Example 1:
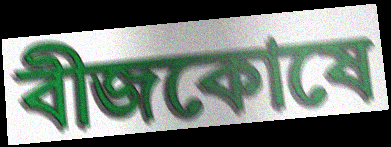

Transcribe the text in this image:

বীজকোষে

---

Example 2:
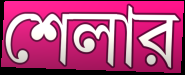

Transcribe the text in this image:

শেলার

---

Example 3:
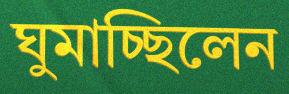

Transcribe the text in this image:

ঘুমাচ্ছিলেন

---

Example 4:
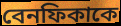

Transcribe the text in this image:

বেনফিকাকে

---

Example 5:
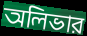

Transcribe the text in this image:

অলিভার